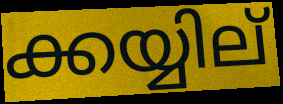
ക്കയ്യില്